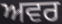
ਅਵਰ